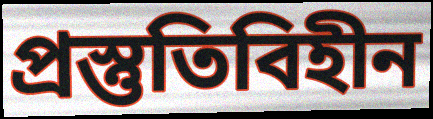
প্রস্তুতিবিহীন